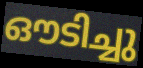
ഔടിച്ചു